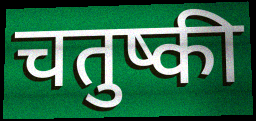
चतुष्की